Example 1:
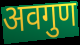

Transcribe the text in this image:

अवगुण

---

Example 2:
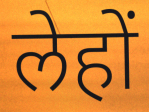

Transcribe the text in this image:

लेहों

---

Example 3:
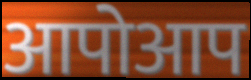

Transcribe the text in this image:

आपोआप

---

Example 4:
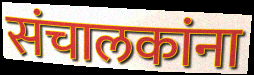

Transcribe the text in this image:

संचालकांना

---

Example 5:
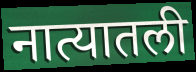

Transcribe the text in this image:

नात्यातली